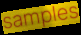
samples